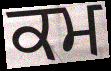
ਕਮ